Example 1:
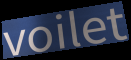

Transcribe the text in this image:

voilet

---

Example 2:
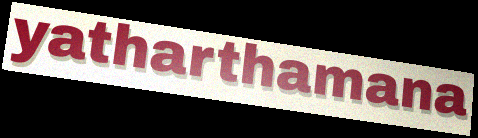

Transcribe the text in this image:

yatharthamana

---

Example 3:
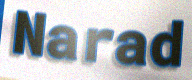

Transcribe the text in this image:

Narad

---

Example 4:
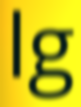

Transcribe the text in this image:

lg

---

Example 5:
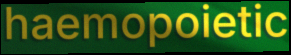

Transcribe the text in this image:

haemopoietic